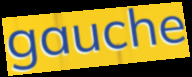
gauche